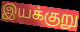
இயக்குறு